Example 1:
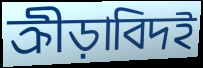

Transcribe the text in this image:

ক্রীড়াবিদই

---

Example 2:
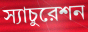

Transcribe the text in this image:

স্যাচুরেশন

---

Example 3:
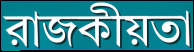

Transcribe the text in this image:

রাজকীয়তা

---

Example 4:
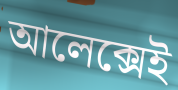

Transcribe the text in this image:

আলেক্সেই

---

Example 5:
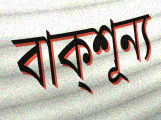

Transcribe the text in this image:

বাক্শূন্য